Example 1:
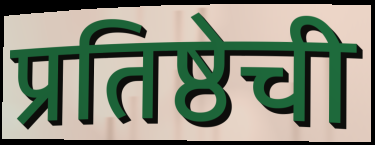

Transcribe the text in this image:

प्रतिष्ठेची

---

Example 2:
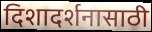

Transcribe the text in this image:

दिशादर्शनासाठी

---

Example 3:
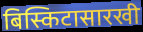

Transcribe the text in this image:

बिस्किटासारखी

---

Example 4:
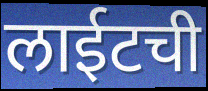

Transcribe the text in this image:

लाईटची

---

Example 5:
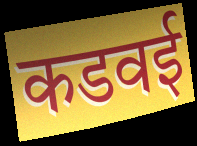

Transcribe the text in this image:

कडवई